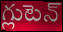
గ్లుటెన్